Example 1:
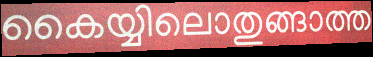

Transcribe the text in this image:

കൈയ്യിലൊതുങ്ങാത്ത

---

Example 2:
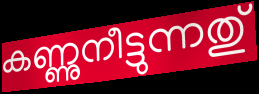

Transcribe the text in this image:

കണ്ണുനീട്ടുന്നതു്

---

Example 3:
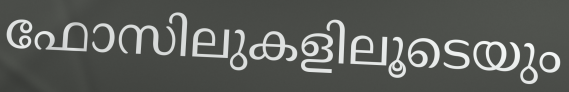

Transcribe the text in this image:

ഫോസിലുകളിലൂടെയും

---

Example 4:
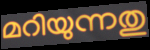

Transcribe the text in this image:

മറിയുന്നതു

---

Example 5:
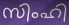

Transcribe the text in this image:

സിംഹി